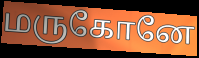
மருகோனே